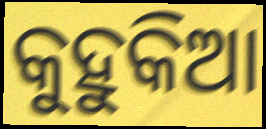
କୁହୁକିଆ